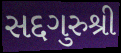
સદ્દગુરુશ્રી